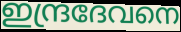
ഇന്ദ്രദേവനെ